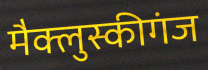
मैक्लुस्कीगंज